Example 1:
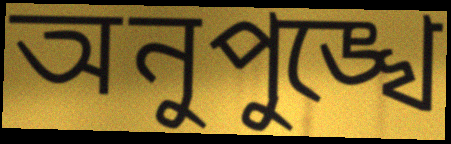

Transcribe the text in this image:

অনুপুঙ্খে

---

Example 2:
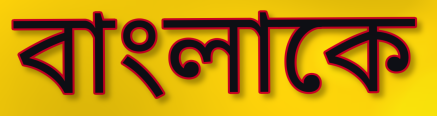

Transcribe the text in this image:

বাংলাকে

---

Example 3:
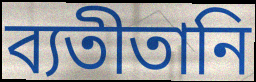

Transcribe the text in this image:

ব্যতীতানি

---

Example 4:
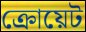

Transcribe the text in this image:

ক্রোয়েট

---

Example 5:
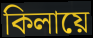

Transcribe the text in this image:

কিলায়ে